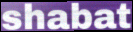
shabat